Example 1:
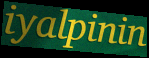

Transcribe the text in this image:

iyalpinin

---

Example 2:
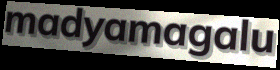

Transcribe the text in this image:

madyamagalu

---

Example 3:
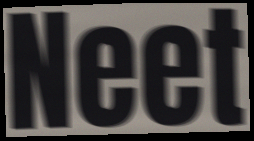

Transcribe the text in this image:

Neet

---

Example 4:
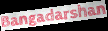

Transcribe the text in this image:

Bangadarshan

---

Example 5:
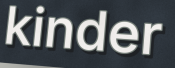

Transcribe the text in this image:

kinder